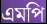
এমপি